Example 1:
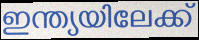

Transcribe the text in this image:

ഇന്ത്യയിലേക്ക്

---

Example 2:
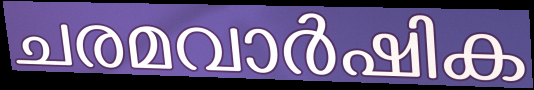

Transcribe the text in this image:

ചരമവാർഷിക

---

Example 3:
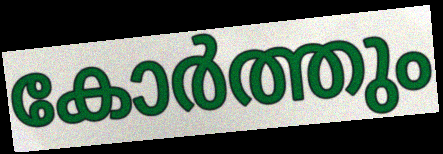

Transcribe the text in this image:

കോർത്തും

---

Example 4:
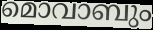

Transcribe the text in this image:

മൊവാബും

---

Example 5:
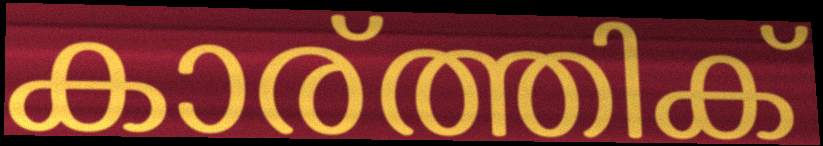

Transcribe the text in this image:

കാര്ത്തിക്